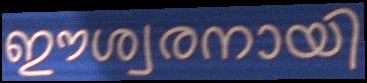
ഈശ്വരനായി